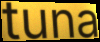
tuna